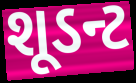
શૂડન્ટ